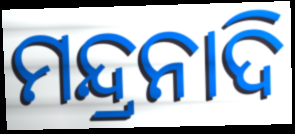
ମନ୍ଦ୍ରନାଦି